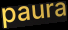
paura